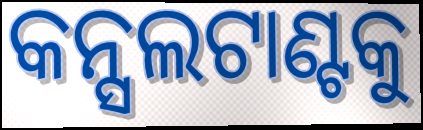
କନ୍ସଲଟାଣ୍ଟକୁ